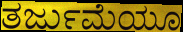
ತರ್ಜುಮೆಯೂ